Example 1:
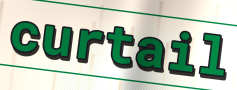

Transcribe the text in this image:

curtail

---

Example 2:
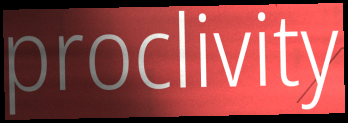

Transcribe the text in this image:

proclivity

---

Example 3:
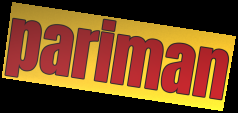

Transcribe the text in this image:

pariman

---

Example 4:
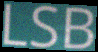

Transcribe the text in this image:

LSB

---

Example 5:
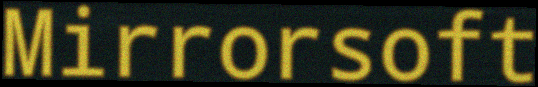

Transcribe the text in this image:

Mirrorsoft